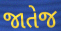
જાતેજ